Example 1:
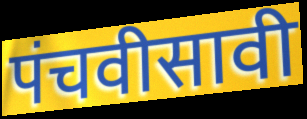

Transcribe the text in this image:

पंचवीसावी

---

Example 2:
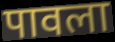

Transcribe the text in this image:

पावला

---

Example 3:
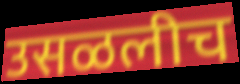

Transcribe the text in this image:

उसळलीच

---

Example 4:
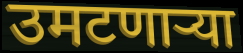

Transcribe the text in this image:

उमटणाऱ्या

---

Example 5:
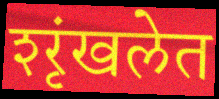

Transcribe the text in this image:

श्रृंखलेत